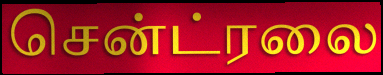
சென்ட்ரலை